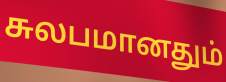
சுலபமானதும்